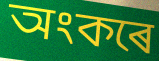
অংকৰে